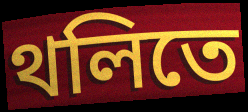
থলিতে